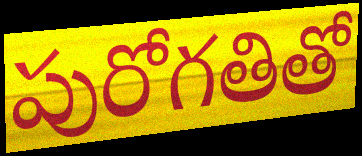
పురోగతితో